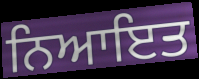
ਨਿਆਇਤ